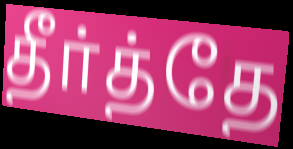
தீர்த்தே